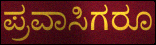
ಪ್ರವಾಸಿಗರೂ